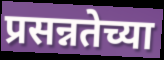
प्रसन्नतेच्या